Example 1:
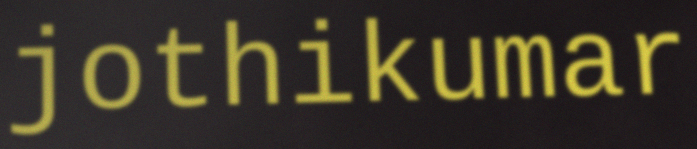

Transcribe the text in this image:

jothikumar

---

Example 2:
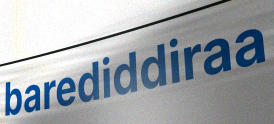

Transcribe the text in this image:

barediddiraa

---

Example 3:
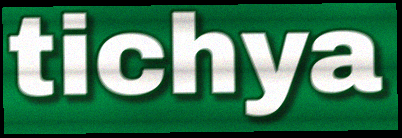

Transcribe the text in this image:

tichya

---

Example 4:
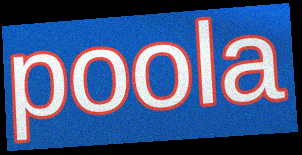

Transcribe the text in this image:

poola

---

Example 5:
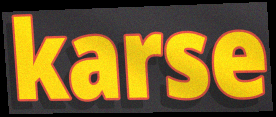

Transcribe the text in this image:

karse